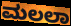
ಮಲಲಾ